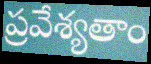
ప్రవేశ్యతాం